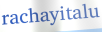
rachayitalu